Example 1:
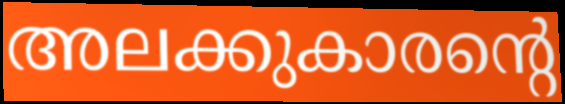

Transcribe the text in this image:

അലക്കുകാരന്റെ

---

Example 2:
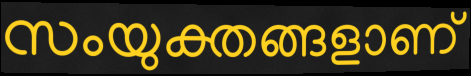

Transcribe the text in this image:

സംയുക്തങ്ങളാണ്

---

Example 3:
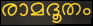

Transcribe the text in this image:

രാമദൂതം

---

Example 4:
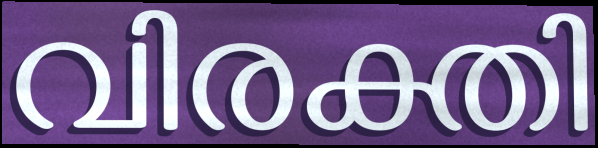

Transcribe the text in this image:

വിരക്തി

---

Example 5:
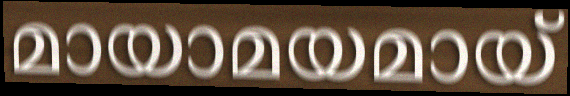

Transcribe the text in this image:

മായാമയമായ്